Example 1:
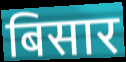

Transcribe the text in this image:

बिसार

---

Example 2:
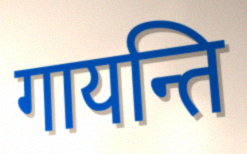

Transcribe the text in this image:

गायन्ति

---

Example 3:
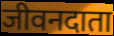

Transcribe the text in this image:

जीवनदाता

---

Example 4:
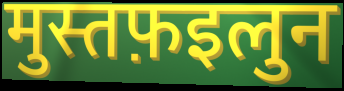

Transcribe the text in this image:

मुस्तफ़इलुन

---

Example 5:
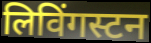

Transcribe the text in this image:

लिविंगस्टन